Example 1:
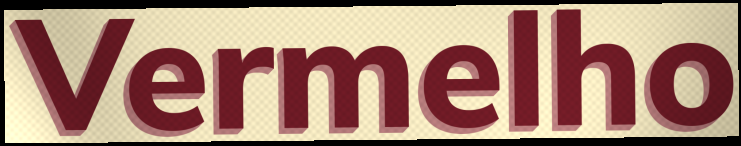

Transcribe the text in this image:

Vermelho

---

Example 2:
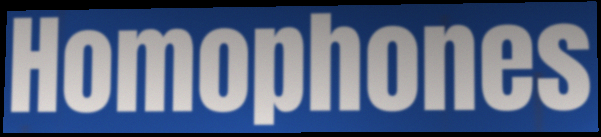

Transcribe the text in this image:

Homophones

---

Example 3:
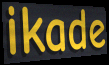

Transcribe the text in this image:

ikade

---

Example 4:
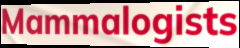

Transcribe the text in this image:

Mammalogists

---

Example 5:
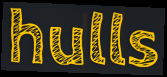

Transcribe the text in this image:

hulls